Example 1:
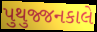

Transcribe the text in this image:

પુથુજ્જનકાલે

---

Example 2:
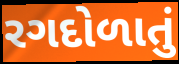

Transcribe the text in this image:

રગદોળાતું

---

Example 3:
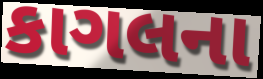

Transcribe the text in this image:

કાગલના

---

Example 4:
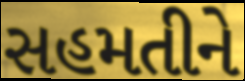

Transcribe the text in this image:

સહમતીને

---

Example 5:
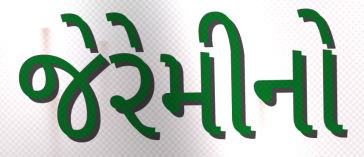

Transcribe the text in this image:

જેરેમીનો